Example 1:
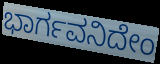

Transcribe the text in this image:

ಭಾರ್ಗವನಿದೇಂ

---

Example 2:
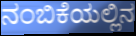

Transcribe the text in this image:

ನಂಬಿಕೆಯಲ್ಲಿನ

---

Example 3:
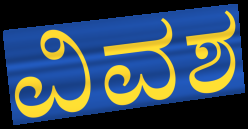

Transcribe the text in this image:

ವಿವಶ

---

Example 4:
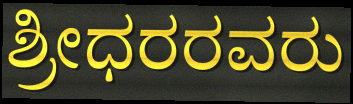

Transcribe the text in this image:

ಶ್ರೀಧರರವರು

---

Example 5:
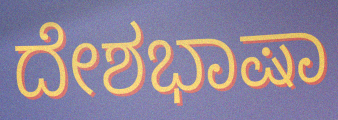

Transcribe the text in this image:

ದೇಶಭಾಷಾ